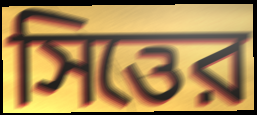
সিত্তের